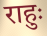
राहुः